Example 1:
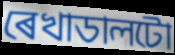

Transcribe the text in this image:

ৰেখাডালটো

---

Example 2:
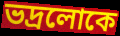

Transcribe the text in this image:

ভদ্ৰলোকে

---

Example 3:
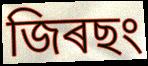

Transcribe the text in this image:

জিৰছং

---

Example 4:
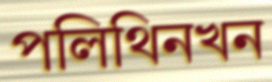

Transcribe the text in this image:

পলিথিনখন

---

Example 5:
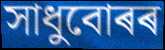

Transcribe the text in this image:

সাধুবোৰৰ